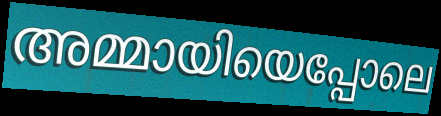
അമ്മായിയെപ്പോലെ